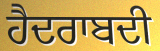
ਹੈਦਰਾਬਦੀ